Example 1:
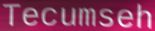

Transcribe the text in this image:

Tecumseh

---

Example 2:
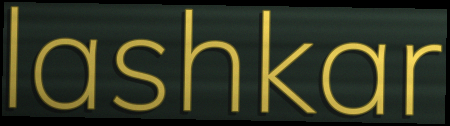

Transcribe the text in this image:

lashkar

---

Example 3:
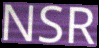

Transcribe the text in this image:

NSR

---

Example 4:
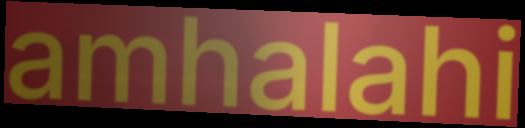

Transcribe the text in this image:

amhalahi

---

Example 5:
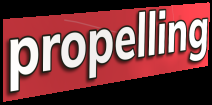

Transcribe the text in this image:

propelling